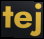
tej